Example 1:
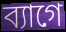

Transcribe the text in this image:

ব্যাগে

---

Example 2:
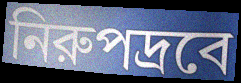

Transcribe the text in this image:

নিরুপদ্রবে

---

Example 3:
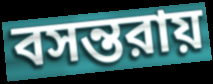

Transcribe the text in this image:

বসন্তরায়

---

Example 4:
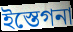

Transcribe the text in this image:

ইস্তেগনা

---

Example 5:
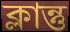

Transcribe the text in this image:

ক্লান্তু